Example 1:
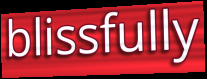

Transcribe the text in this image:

blissfully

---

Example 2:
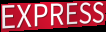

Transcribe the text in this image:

EXPRESS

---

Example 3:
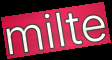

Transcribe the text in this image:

milte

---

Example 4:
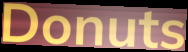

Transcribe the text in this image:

Donuts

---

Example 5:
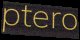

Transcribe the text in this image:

ptero